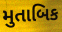
મુતાબિક